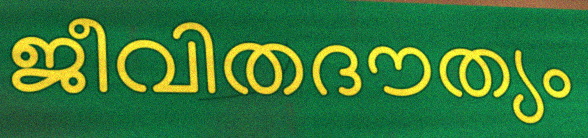
ജീവിതദൗത്യം